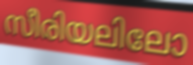
സീരിയലിലോ